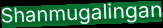
Shanmugalingan